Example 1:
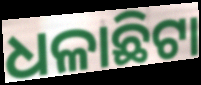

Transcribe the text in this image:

ଧଳାଛିଟା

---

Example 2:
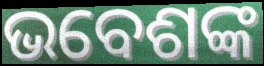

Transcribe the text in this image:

ଭବେଶଙ୍କ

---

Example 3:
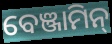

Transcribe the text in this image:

ବେଞ୍ଜାମିନ୍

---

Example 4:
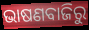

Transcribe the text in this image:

ଭାଷଣବାଜିରୁ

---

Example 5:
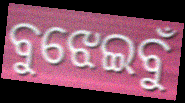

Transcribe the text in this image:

ବୁଝେଇବୁଁ